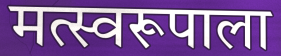
मत्स्वरूपाला